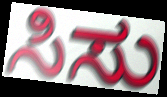
ಸಿಸು